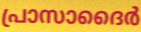
പ്രാസാദൈർ